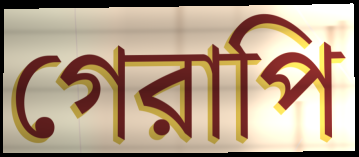
গেরাপি